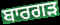
ਬਾਰਗੜ